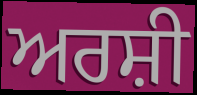
ਅਰਸ਼ੀ